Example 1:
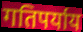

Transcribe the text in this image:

गतिपर्याय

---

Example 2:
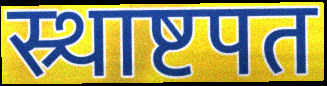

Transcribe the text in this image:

स्र्थाष्टपत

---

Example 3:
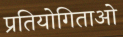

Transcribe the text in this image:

प्रतियोगिताओ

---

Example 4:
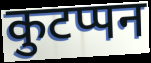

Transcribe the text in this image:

कुटप्पन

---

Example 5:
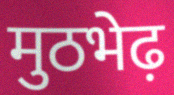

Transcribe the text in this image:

मुठभेढ़